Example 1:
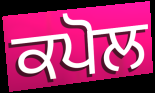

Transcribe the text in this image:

ਕਪੋਲ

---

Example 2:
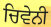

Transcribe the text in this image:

ਚਿਵੇਨੀ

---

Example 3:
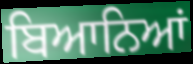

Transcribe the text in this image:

ਬਿਆਨਿਆਂ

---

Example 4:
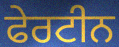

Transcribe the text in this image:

ਫੇਰਟੀਨ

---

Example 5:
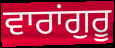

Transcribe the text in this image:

ਵਾਰਾਂਗੁਰੂ